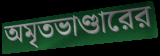
অমৃতভাণ্ডারের